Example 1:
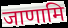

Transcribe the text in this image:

जाणामि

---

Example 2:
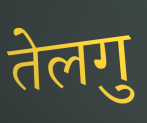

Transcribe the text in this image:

तेलगु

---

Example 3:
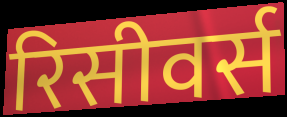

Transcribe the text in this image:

रिसीवर्स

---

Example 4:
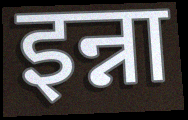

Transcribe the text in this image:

इन्ना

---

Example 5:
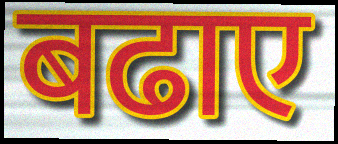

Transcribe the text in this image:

बढाए